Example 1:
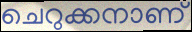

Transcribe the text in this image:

ചെറുക്കനാണ്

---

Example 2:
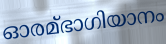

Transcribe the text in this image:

ഓരമ്ഭാഗിയാനം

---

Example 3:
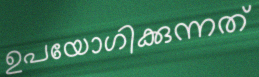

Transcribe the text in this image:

ഉപയോഗിക്കുന്നത്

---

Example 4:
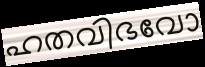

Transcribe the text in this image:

ഹതവിഭവോ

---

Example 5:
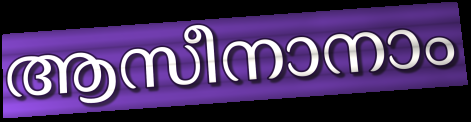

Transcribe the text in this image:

ആസീനാനാം